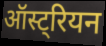
ऑस्ट्रियन